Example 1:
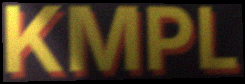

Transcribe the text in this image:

KMPL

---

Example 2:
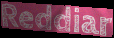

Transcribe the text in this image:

Reddiar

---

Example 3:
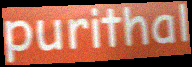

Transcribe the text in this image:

purithal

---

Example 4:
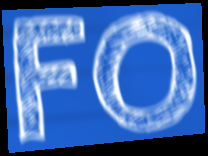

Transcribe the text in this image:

FO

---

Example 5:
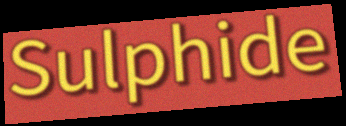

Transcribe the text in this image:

Sulphide